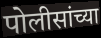
पोलीसांच्या